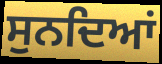
ਸੁਨਦਿਆਂ